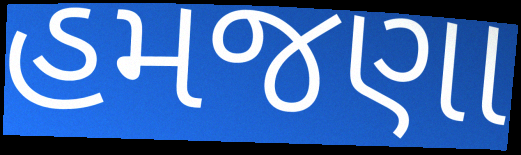
હમજણા